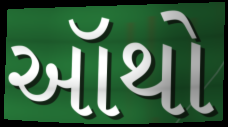
ઑથો